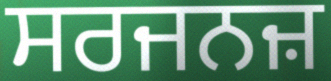
ਸਰਜਨਜ਼